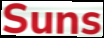
Suns